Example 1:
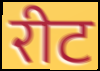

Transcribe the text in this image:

रीट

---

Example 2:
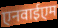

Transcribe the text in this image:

एनवाईएम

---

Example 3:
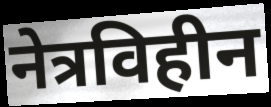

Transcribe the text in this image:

नेत्रविहीन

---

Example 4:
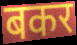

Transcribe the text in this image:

बकर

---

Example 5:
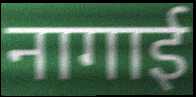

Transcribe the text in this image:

नागाई